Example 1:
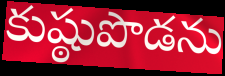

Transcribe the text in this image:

కుష్ఠుపొడను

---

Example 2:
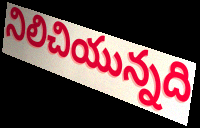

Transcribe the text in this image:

నిలిచియున్నది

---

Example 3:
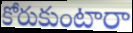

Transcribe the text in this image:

కోరుకుంటారా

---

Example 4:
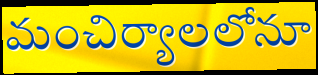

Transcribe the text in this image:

మంచిర్యాలలోనూ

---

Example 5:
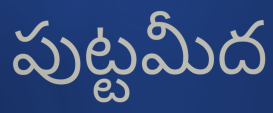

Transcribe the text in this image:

పుట్టమీద